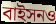
বাইসনও